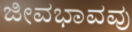
ಜೀವಭಾವವು